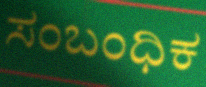
ಸಂಬಂಧಿಕ